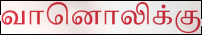
வானொலிக்கு